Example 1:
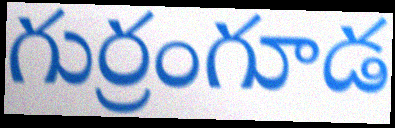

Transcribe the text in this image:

గుర్రంగూడ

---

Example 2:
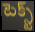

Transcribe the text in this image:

టెక్స్ట్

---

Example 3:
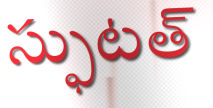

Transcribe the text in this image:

స్ఫుటత్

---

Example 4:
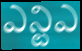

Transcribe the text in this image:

ఎన్టిఎ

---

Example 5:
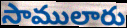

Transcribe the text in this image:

సాములారు